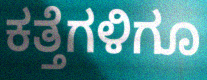
ಕತ್ತೆಗಳಿಗೂ